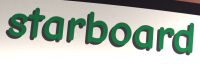
starboard